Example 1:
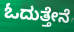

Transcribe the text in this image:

ಓದುತ್ತೇನೆ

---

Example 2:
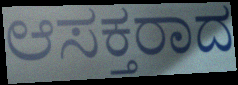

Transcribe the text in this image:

ಆಸಕ್ತರಾದ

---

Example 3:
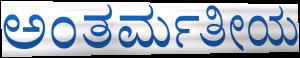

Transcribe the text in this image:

ಅಂತರ್ಮತೀಯ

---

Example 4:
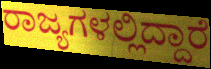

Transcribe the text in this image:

ರಾಜ್ಯಗಳಲ್ಲಿದ್ದಾರೆ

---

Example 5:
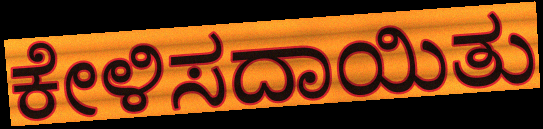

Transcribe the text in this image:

ಕೇಳಿಸದಾಯಿತು